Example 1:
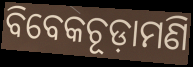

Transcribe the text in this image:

ବିବେକଚୂଡ଼ାମଣି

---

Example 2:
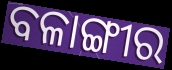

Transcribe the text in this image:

ବଳାଙ୍ଗୀର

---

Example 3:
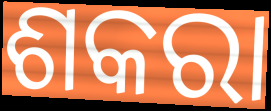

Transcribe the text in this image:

ଶକରା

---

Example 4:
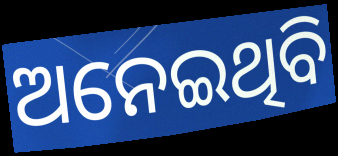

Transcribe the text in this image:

ଅନେଇଥିବି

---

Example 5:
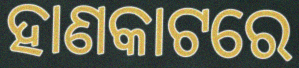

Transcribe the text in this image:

ହାଣକାଟରେ